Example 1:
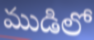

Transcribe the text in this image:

ముడిలో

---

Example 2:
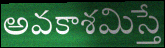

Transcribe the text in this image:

అవకాశమిస్తే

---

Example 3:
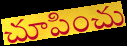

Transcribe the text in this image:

చూపించు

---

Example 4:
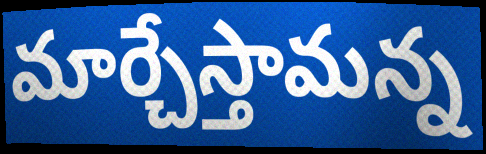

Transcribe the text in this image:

మార్చేస్తామన్న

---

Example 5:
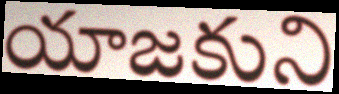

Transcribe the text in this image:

యాజకుని